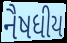
નૈષધીય